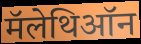
मॅलेथिऑन